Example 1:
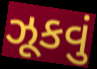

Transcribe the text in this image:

ઝૂકવું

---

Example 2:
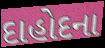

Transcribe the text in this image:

દાહોદના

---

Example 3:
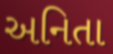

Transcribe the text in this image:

અનિતા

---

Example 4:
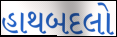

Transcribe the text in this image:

હાથબદલો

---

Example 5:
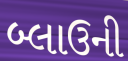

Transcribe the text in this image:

બ્લાઉની